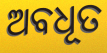
ଅବଧୂତ